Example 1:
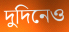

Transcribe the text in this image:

দুদিনেও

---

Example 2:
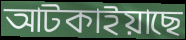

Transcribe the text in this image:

আটকাইয়াছে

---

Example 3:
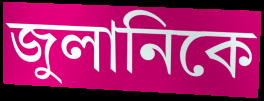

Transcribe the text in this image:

জুলানিকে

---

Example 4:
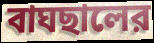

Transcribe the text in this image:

বাঘছালের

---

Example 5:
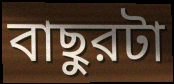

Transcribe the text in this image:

বাছুরটা